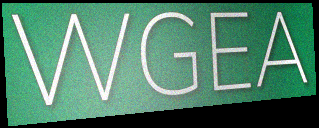
WGEA